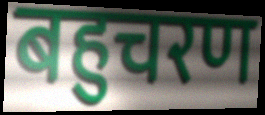
बहुचरण